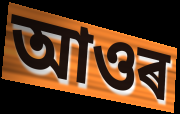
আওৰ